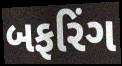
બફરિંગ